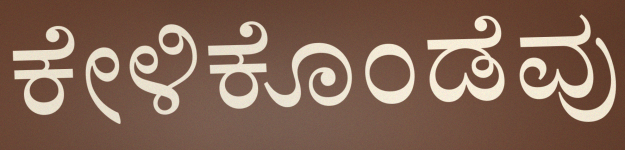
ಕೇಳಿಕೊಂಡೆವು